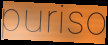
puriso